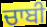
ਚਾਬੀ